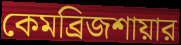
কেমব্রিজশায়ার